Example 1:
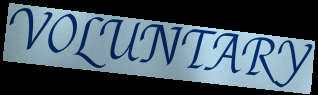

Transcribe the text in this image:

VOLUNTARY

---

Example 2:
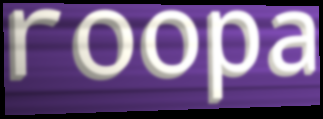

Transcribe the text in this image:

roopa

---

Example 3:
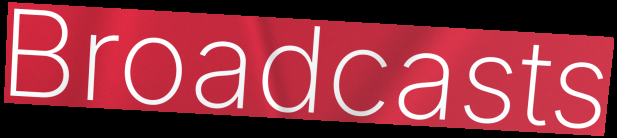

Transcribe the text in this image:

Broadcasts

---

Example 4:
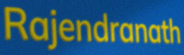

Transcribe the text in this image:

Rajendranath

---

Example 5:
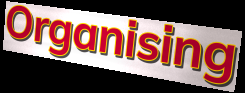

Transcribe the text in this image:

Organising